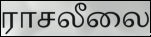
ராசலீலை